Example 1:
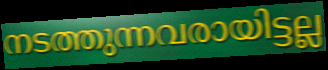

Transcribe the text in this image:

നടത്തുന്നവരായിട്ടല്ല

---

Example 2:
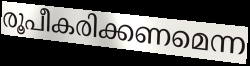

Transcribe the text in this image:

രൂപീകരിക്കണമെന്ന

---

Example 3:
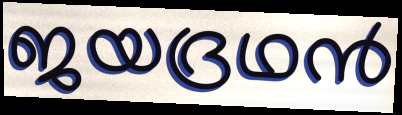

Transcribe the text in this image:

ജയദ്രഥൻ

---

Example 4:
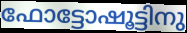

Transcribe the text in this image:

ഫോട്ടോഷൂട്ടിനു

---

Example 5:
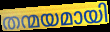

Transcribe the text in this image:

തന്മയമായി